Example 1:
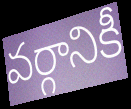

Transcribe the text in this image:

వర్గానికీ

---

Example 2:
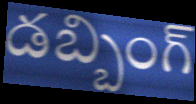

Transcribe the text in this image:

డబ్బింగ్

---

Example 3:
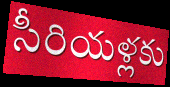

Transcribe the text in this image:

సీరియళ్లకు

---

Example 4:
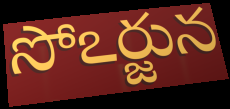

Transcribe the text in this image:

సోఽర్జున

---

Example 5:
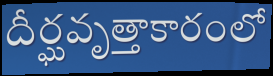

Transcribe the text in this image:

దీర్ఘవృత్తాకారంలో